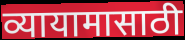
व्यायामासाठी